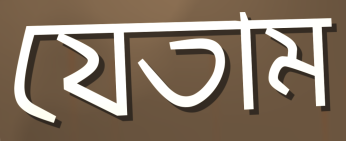
যেতাম